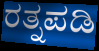
ರತ್ನಪಡಿ